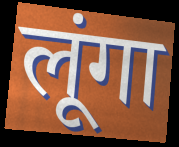
लूंगा